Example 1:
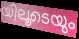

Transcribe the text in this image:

യിലൂടെയും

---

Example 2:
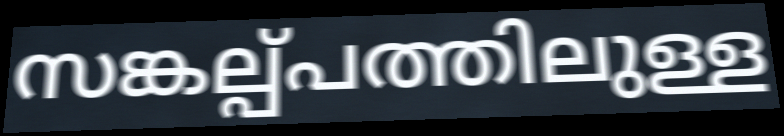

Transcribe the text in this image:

സങ്കല്പ്പത്തിലുള്ള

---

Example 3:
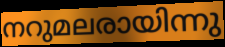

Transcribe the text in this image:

നറുമലരായിന്നു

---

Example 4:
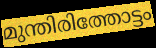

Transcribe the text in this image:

മുന്തിരിത്തോട്ടം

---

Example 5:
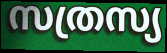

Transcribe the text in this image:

സത്രസ്യ